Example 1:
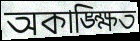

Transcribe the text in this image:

অকাঙ্ক্ষিত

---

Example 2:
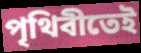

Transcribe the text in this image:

পৃথিবীতেই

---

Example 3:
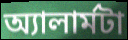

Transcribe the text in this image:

অ্যালার্মটা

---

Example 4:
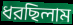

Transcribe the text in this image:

ধরছিলাম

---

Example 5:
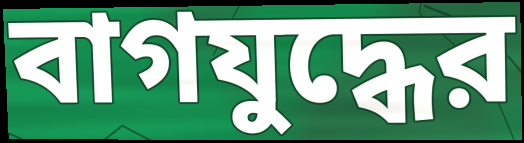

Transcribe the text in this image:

বাগযুদ্ধের